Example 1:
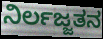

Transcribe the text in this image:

ನಿರ್ಲಜ್ಜತನ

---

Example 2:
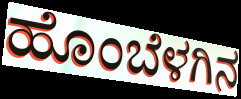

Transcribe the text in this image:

ಹೊಂಬೆಳಗಿನ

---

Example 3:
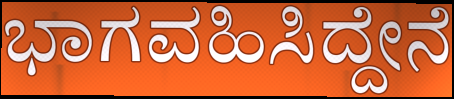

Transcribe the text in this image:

ಭಾಗವಹಿಸಿದ್ದೇನೆ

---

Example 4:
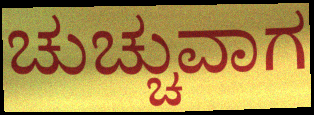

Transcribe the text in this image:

ಚುಚ್ಚುವಾಗ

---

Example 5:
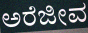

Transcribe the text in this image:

ಅರೆಜೀವ